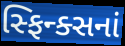
સ્ફિન્ક્સનાં